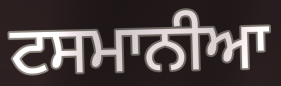
ਟਸਮਾਨੀਆ